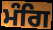
ਮੰਗਿ